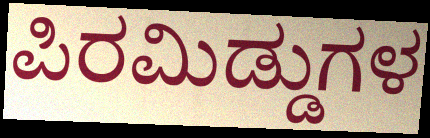
ಪಿರಮಿಡ್ಡುಗಳ